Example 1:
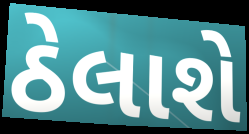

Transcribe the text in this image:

ઠેલાશે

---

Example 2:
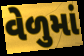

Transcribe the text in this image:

વેળુમાં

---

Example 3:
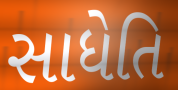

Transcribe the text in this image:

સાધેતિ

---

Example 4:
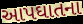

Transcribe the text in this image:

આપઘાતના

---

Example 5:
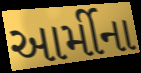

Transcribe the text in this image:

આર્મીના